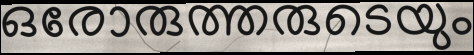
ഒരോരുത്തരുടെയും